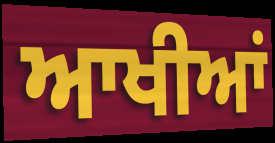
ਆਖੀਆਂ